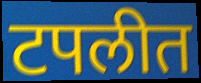
टपलीत